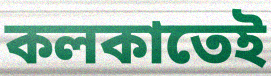
কলকাতেই